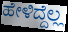
ಹೇಳಿದ್ದೆಲ್ಲ